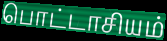
பொட்டாசியம்